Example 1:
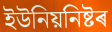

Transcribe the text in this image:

ইউনিয়নিষ্টৰ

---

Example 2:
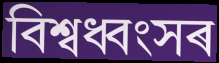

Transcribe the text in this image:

বিশ্বধ্বংসৰ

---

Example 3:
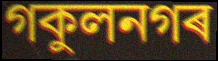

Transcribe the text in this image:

গকুলনগৰ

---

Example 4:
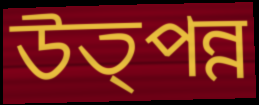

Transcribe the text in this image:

উত্পন্ন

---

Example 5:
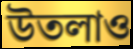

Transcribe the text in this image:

উতলাও